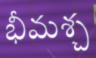
భీమశ్చ